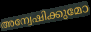
അന്വേഷിക്കുമോ